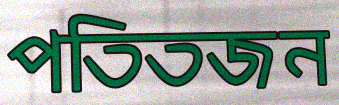
পতিতজন